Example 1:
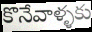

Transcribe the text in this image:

కొనేవాళ్ళకు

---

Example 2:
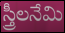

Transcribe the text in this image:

స్త్రీలనేమి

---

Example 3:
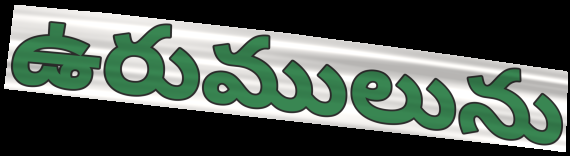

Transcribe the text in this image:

ఉరుములును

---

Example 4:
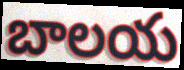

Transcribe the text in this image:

బాలయ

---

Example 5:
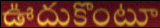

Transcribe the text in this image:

ఊదుకొంటూ